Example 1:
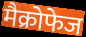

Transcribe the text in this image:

मैक्रोफेज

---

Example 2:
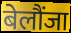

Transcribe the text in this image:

बेलौंजा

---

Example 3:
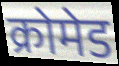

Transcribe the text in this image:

क्रोमेड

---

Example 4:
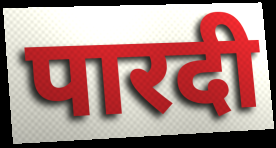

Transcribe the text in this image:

पारदी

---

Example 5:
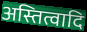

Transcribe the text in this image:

अस्तित्वादि